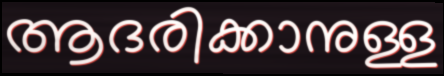
ആദരിക്കാനുള്ള